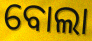
ବୋଲା